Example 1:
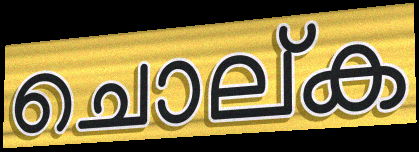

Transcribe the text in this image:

ചൊല്ക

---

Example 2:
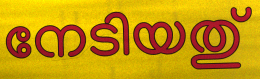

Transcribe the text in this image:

നേടിയതു്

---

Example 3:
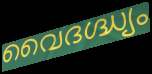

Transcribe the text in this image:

വൈദഗ്ദ്ധ്യം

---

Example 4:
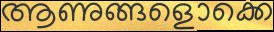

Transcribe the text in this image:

ആണുങ്ങളൊക്കെ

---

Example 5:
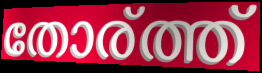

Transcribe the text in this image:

തോര്ത്ത്